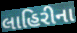
લાહિરીના